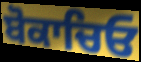
ਬੋਕਾਚਿਓ